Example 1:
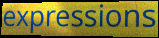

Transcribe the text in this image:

expressions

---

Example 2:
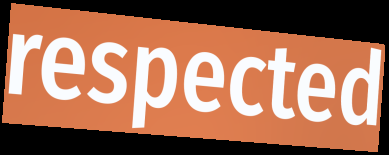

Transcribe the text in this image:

respected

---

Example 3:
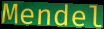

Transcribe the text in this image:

Mendel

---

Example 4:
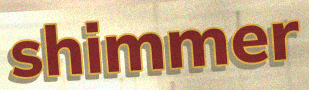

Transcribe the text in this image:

shimmer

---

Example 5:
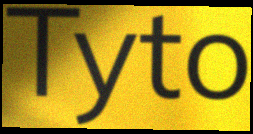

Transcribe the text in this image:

Tyto